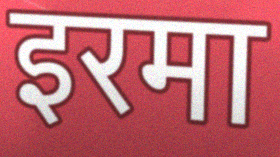
इरमा